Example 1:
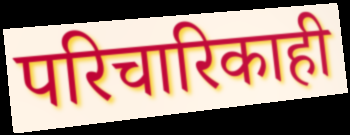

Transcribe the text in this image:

परिचारिकाही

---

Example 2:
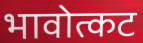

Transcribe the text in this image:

भावोत्कट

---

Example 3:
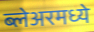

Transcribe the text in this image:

ब्लेअरमध्ये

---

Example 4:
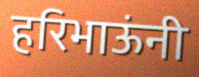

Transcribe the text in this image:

हरिभाऊंनी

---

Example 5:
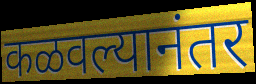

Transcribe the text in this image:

कळवल्यानंतर